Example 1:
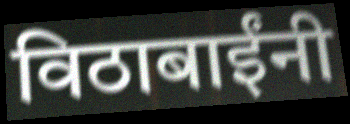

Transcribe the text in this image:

विठाबाईंनी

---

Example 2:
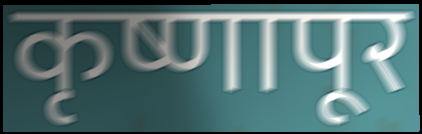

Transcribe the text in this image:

कृष्णापूर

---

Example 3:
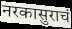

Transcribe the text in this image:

नरकासुराचं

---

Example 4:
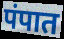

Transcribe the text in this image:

पंपात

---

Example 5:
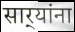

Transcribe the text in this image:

सार्यांना